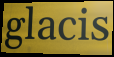
glacis